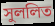
সুললিত